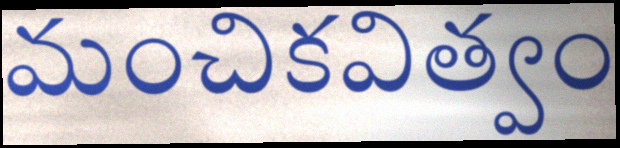
మంచికవిత్వం